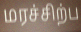
மரச்சிற்ப